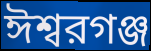
ঈশ্বরগঞ্জ